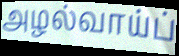
அழல்வாய்ப்